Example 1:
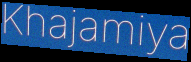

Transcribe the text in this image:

Khajamiya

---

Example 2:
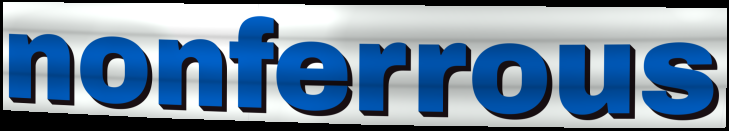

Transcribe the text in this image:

nonferrous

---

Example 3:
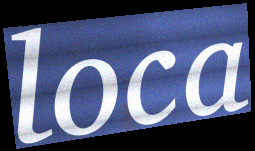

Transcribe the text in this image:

loca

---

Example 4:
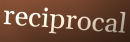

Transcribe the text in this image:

reciprocal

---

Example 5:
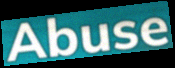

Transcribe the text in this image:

Abuse